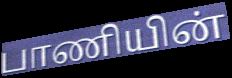
பாணியின்